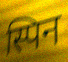
स्पिन